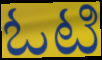
ಓಟಿ